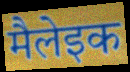
मैलेइक